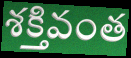
శక్తివంత